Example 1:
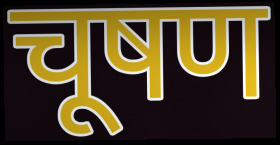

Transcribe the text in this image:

चूषण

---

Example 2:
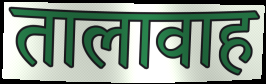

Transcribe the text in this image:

तालावाह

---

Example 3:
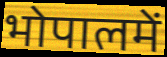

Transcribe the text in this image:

भोपालमें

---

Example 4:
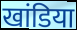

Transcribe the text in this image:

खांडिया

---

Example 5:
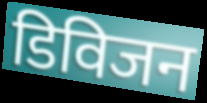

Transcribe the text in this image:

डिविजन